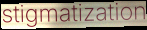
stigmatization